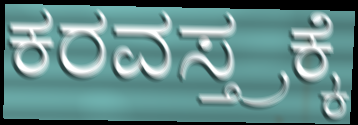
ಕರವಸ್ತ್ರಕ್ಕೆ